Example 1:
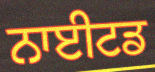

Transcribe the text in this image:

ਨਾਈਟਡ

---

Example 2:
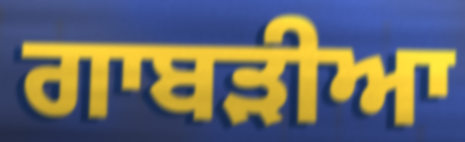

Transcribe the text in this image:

ਗਾਬੜੀਆ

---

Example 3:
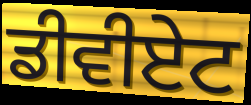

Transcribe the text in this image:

ਡੀਵੀਏਟ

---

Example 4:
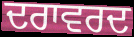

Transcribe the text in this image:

ਦਰਾਵਰਦ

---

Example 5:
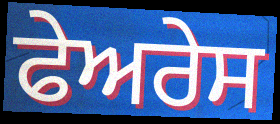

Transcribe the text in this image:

ਫੇਅਰੇਸ